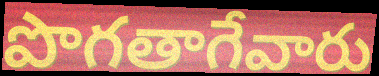
పొగతాగేవారు